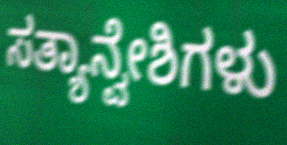
ಸತ್ಯಾನ್ವೇಶಿಗಳು